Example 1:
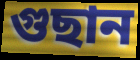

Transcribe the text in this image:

গুছান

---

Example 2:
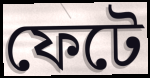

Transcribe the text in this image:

ফেটে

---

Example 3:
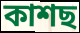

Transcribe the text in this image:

কাশছ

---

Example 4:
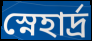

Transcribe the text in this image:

স্নেহার্দ্র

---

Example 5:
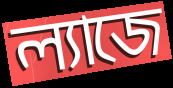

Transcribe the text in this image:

ল্যাজে